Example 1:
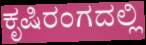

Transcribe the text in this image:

ಕೃಷಿರಂಗದಲ್ಲಿ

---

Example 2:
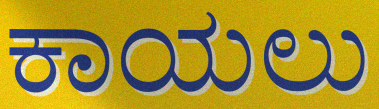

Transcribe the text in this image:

ಕಾಯಲು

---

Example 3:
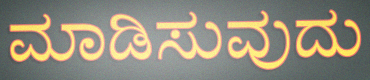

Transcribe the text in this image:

ಮಾಡಿಸುವುದು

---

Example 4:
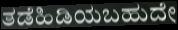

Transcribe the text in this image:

ತಡೆಹಿಡಿಯಬಹುದೇ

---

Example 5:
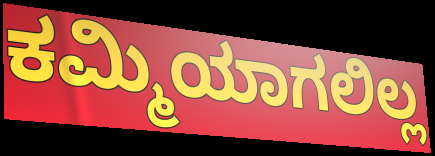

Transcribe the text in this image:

ಕಮ್ಮಿಯಾಗಲಿಲ್ಲ